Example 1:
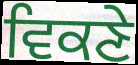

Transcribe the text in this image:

ਵਿਕਣੇ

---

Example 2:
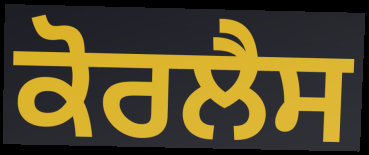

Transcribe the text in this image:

ਕੋਰਲੈਸ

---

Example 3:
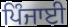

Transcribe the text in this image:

ਪਿੰਜਾਈ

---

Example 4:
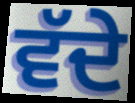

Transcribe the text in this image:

ਵੱਦੇ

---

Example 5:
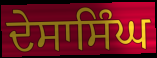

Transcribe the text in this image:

ਦੇਸਾਸਿੰਘ